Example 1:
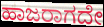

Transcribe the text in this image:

ಹಾಜರಾಗದೇ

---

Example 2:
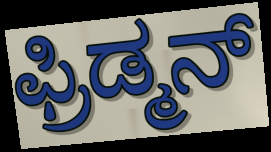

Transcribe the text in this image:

ಫ್ರಿಡ್ಮನ್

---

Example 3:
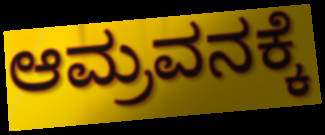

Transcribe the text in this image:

ಆಮ್ರವನಕ್ಕೆ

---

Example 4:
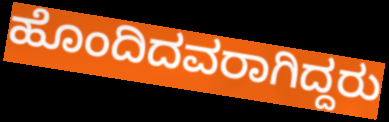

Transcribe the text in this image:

ಹೊಂದಿದವರಾಗಿದ್ದರು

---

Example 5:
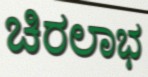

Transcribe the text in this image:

ಚಿರಲಾಭ